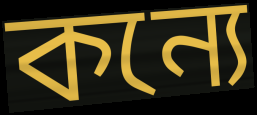
কন্যে